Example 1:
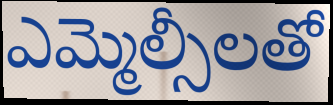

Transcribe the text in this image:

ఎమ్మెల్సీలతో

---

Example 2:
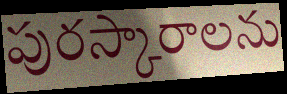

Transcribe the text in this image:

పురస్కారాలను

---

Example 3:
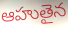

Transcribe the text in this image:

ఆహుతైన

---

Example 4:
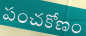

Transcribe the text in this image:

పంచకోణం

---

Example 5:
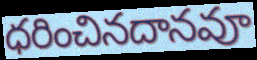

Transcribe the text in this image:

ధరించినదానవూ